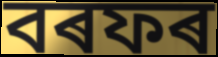
বৰফৰ